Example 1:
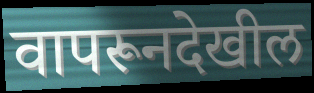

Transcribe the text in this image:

वापरूनदेखील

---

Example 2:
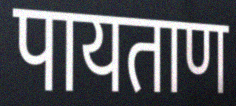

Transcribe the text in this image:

पायताण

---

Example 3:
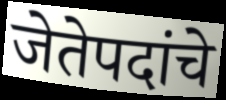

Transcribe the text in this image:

जेतेपदांचे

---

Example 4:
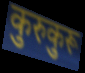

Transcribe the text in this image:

कुरुकुरू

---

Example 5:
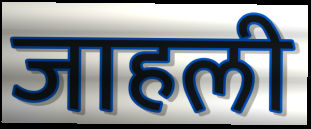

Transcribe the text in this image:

जाहली